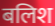
बलिश